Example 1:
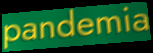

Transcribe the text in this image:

pandemia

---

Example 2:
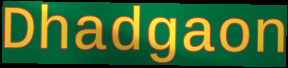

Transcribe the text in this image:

Dhadgaon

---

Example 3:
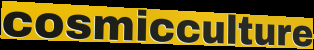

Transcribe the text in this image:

cosmicculture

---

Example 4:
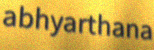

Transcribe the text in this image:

abhyarthana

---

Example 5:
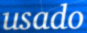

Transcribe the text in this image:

usado